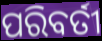
ପରିବର୍ତୀ